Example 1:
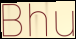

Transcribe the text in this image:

Bhu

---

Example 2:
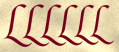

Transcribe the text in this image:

LLLLLL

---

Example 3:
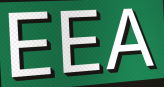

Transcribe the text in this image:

EEA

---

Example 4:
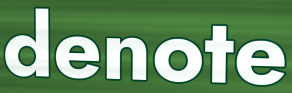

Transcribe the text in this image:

denote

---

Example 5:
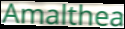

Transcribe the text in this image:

Amalthea